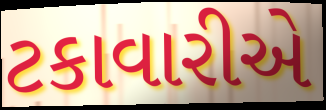
ટકાવારીએ